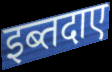
इब्तदाए